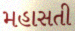
મહાસતી